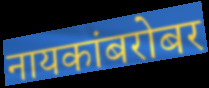
नायकांबरोबर